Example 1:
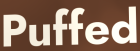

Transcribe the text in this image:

Puffed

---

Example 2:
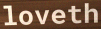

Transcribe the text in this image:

loveth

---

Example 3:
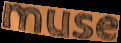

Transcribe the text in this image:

muse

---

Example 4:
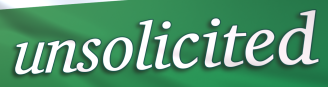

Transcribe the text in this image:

unsolicited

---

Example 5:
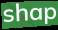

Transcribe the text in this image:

shap